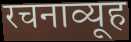
रचनाव्यूह